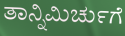
ತಾನ್ನಿಮಿರ್ಚುಗೆ